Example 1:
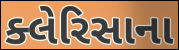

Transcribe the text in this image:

ક્લેરિસાના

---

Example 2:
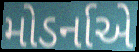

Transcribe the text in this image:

મોડર્નાએ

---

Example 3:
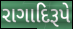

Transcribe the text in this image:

રાગાદિરૂપે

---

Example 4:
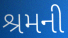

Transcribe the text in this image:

શ્રમની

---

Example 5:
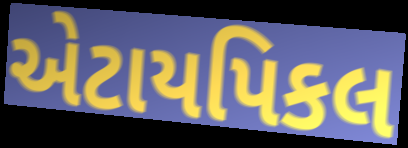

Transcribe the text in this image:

એટાયપિકલ